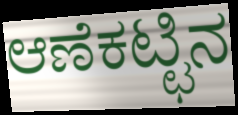
ಆಣೆಕಟ್ಟಿನ